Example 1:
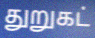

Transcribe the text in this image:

துறுகட்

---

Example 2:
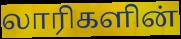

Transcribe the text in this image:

லாரிகளின்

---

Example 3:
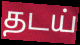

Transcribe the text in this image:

தடய்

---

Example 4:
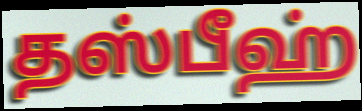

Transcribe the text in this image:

தஸ்பீஹ்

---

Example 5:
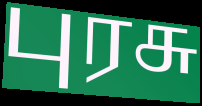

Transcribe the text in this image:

புரசு